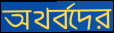
অথর্বদের